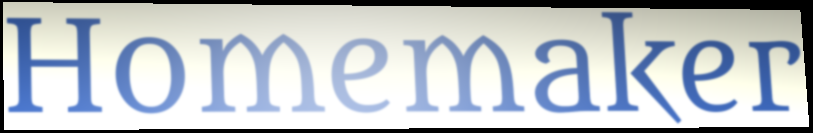
Homemaker